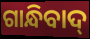
ଗାନ୍ଧିବାଦ୍